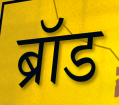
ब्रॉड